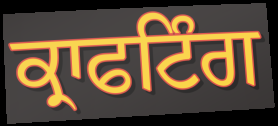
ਕ੍ਰਾਫਟਿੰਗ